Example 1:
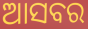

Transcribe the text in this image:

ଆସବର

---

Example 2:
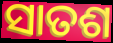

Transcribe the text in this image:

ସାତଶ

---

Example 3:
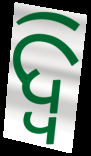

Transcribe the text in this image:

ଦ୍ଵି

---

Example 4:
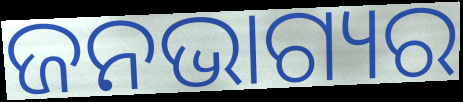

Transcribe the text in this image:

ଜନଭାଗ୍ୟର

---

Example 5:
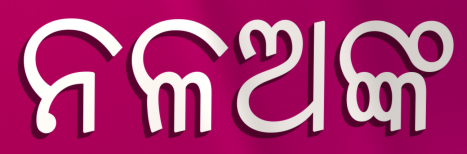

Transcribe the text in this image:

ନଳଅଙ୍କ